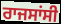
ਰਾਜਸਾਂਸੀ